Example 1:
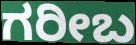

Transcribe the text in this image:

ಗರೀಬ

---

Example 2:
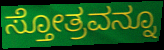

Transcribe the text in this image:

ಸ್ತೋತ್ರವನ್ನೂ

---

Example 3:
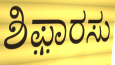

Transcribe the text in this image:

ಶಿಫ಼ಾರಸು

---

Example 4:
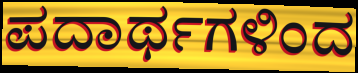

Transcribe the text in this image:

ಪದಾರ್ಥಗಳಿಂದ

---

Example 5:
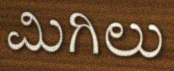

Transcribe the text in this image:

ಮಿಗಿಲು